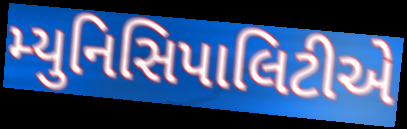
મ્યુનિસિપાલિટીએ